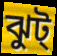
ঝুট্